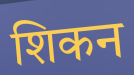
शिकन